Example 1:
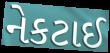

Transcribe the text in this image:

નેકટાઈ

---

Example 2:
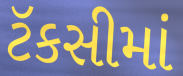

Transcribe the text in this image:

ટૅકસીમાં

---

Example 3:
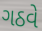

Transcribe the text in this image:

ગઠવે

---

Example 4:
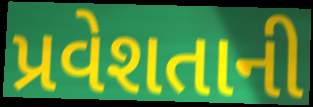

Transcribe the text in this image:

પ્રવેશતાની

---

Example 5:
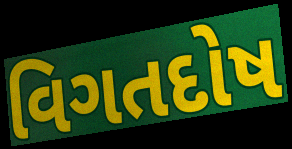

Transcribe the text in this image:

વિગતદોષ